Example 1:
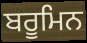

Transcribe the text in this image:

ਬਰੂਮਿਨ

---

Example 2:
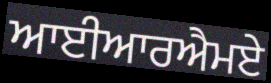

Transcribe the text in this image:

ਆਈਆਰਐਮਏ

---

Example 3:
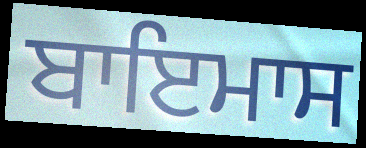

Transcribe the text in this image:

ਬਾਇਮਾਸ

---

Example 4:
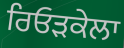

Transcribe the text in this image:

ਰਿਓੜਕੇਲਾ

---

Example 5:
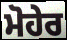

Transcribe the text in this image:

ਮੋਹੇਰ